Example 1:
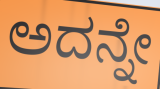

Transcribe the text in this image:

ಅದನ್ನೇ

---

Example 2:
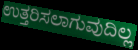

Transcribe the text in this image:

ಉತ್ತರಿಸಲಾಗುವುದಿಲ್ಲ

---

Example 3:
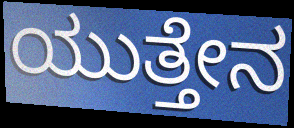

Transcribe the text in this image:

ಯುತ್ತೇನ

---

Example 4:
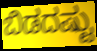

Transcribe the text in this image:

ಬಿಡದಷ್ಟು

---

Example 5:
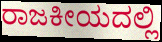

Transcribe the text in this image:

ರಾಜಕೀಯದಲ್ಲಿ